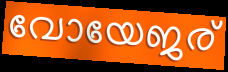
വോയേജര്